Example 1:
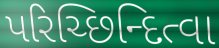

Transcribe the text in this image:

પરિચ્છિન્દિત્વા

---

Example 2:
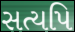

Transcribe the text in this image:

સત્યપિ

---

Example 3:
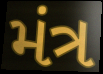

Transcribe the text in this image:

મંત્ર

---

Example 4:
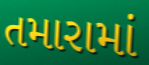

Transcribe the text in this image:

તમારામાં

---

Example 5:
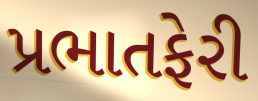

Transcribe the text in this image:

પ્રભાતફેરી